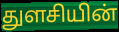
துளசியின்